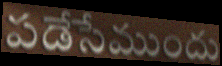
పడేసేముందు